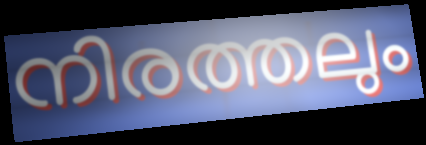
നിരത്തലും